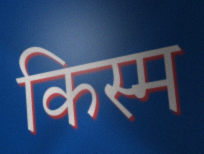
किस्म